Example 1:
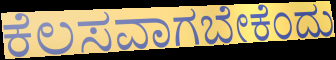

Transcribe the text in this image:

ಕೆಲಸವಾಗಬೇಕೆಂದು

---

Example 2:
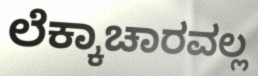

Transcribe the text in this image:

ಲೆಕ್ಕಾಚಾರವಲ್ಲ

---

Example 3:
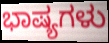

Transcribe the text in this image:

ಭಾಷ್ಯಗಳು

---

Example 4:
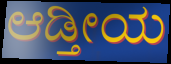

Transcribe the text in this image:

ಆಡ್ತೀಯ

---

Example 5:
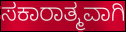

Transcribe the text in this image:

ಸಕಾರಾತ್ಮವಾಗಿ